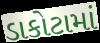
ડાકોટામાં